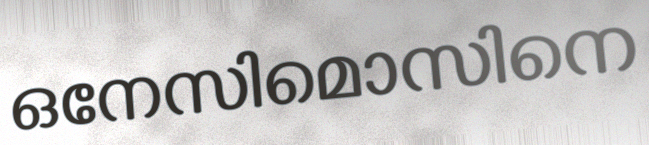
ഒനേസിമൊസിനെ